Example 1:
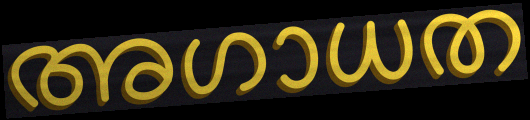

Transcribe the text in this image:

അഗാധത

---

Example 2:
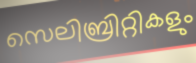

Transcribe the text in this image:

സെലിബ്രിറ്റികളും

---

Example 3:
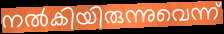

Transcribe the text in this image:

നൽകിയിരുന്നുവെന്ന്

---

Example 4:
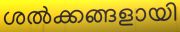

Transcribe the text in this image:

ശൽക്കങ്ങളായി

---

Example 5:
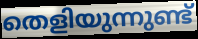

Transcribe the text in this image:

തെളിയുന്നുണ്ട്